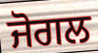
ਜੋਗਲ